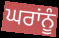
ਘਰਾਂਨੂੰ